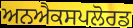
ਅਨਐਕਸਪਲੋਰਡ